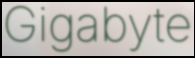
Gigabyte